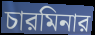
চারমিনার